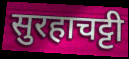
सुरहाचट्टी